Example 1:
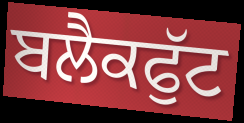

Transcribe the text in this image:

ਬਲੈਕਫੁੱਟ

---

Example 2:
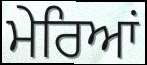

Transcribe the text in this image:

ਮੇਰਿਆਂ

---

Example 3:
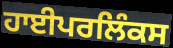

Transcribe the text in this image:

ਹਾਈਪਰਲਿੰਕਸ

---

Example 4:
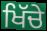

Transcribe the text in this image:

ਖਿੱਚੇ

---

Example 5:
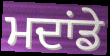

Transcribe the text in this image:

ਮਦਾਂਡੇ